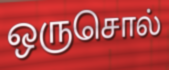
ஒருசொல்